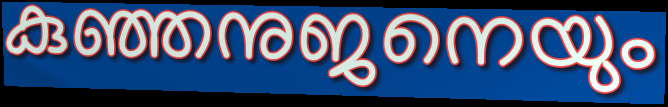
കുഞ്ഞനുജനെയും